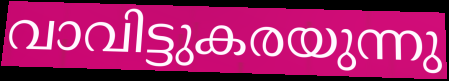
വാവിട്ടുകരയുന്നു